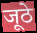
जूठे